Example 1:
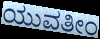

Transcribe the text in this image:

ಯುವತೀಂ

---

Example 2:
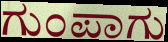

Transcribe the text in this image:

ಗುಂಪಾಗು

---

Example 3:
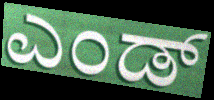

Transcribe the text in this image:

ಎಂಡ್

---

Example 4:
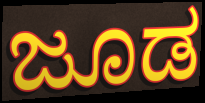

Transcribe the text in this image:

ಜೂಡ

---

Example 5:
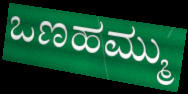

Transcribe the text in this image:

ಒಣಹಮ್ಮು